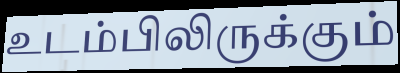
உடம்பிலிருக்கும்